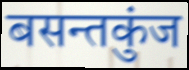
बसन्तकुंज